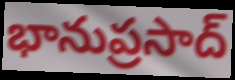
భానుప్రసాద్